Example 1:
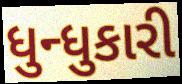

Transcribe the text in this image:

ધુન્ધુકારી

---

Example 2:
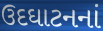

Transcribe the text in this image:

ઉદઘાટનનાં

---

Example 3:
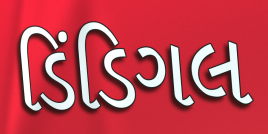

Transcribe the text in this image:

ડિંડિગલ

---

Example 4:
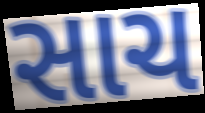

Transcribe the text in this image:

સાચ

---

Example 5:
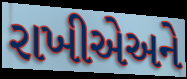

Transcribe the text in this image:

રાખીએઅને